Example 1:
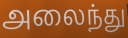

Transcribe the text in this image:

அலைந்து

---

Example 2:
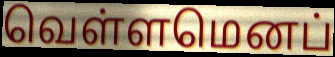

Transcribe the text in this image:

வெள்ளமெனப்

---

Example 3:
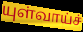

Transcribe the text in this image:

யுள்வாய்ச்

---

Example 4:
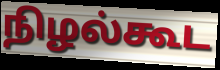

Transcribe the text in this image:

நிழல்கூட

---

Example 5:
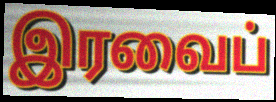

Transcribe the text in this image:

இரவைப்